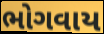
ભોગવાય